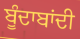
ਬੂੰਦਾਬਾਂਦੀ